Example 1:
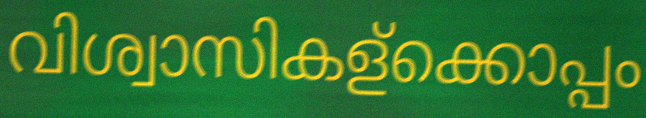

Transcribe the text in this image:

വിശ്വാസികള്ക്കൊപ്പം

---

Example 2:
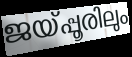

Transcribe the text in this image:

ജയ്പ്പൂരിലും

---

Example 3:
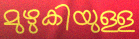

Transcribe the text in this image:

മുഴുകിയുള്ള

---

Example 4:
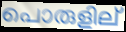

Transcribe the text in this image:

പൊരുളില്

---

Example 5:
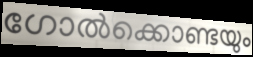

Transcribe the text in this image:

ഗോൽക്കൊണ്ടയും